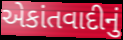
એકાંતવાદીનું